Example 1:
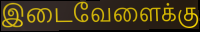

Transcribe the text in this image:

இடைவேளைக்கு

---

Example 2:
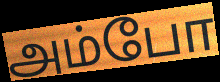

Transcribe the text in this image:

அம்போ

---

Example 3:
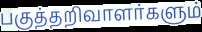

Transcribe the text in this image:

பகுத்தறிவாளர்களும்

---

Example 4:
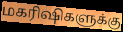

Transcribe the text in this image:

மகரிஷிகளுக்கு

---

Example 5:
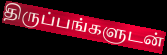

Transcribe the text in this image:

திருப்பங்களுடன்